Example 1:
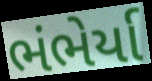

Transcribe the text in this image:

ભંભેર્યા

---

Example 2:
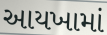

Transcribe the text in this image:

આયખામાં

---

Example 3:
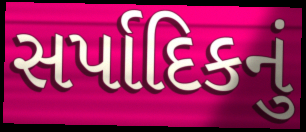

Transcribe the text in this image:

સર્પાદિકનું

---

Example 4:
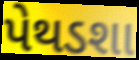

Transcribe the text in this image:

પેથડશા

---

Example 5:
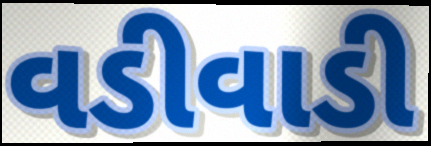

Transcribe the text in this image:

વડીવાડી